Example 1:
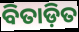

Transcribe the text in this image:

ବିତାଡ଼ିତ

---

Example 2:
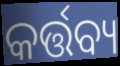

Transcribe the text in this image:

କର୍ତ୍ତବ୍ୟ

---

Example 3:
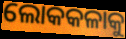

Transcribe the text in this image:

ଲୋକକଳାକୁ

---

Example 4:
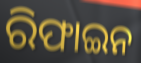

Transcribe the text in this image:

ରିଫାଇନ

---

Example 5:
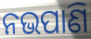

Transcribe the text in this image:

ନଭପାଣି